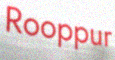
Rooppur